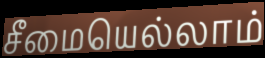
சீமையெல்லாம்